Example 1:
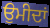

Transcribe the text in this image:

ਉਮੀਦਾਂ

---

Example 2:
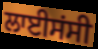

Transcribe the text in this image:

ਲਾਈਸਂਸੀ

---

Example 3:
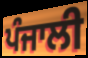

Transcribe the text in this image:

ਪੰਜਾਲੀ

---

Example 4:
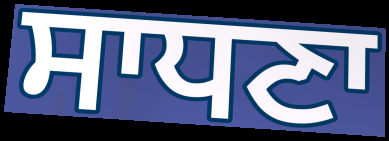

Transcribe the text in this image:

ਸਾਧਣਾ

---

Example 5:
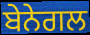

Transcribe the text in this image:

ਬੇਨੇਗਲ